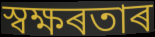
স্বক্ষৰতাৰ